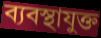
ব্যবস্থাযুক্ত